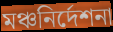
মঞ্চনির্দেশনা